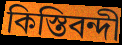
কিস্তিবন্দী